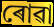
ৰোৱা